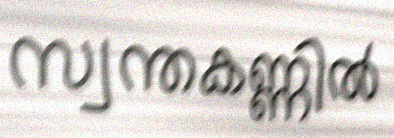
സ്വന്തകണ്ണിൽ